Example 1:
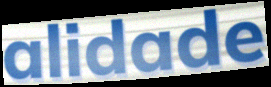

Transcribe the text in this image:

alidade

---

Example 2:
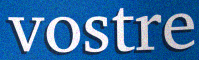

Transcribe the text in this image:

vostre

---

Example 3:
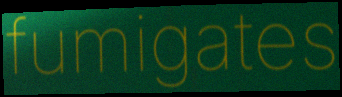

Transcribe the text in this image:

fumigates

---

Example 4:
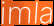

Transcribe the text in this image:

imla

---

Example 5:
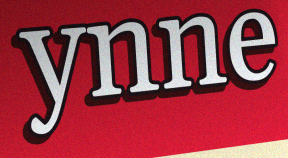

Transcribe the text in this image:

ynne